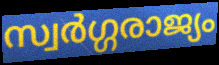
സ്വർഗ്ഗരാജ്യം